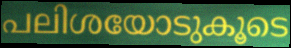
പലിശയോടുകൂടെ